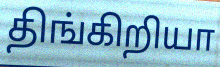
திங்கிறியா